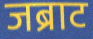
जब्राट